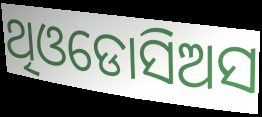
ଥିଓଡୋସିଅସ